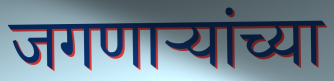
जगणाऱ्यांच्या